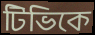
টিভিকে